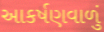
આકર્ષણવાળું